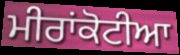
ਮੀਰਾਂਕੋਟੀਆ